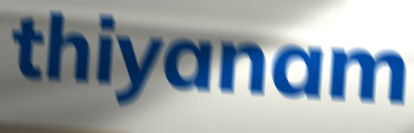
thiyanam